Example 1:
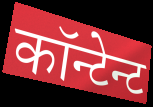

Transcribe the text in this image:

कॉन्टेन्ट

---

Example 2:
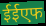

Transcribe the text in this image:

ईईएफ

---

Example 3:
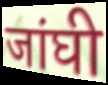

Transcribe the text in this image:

जांघी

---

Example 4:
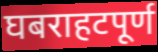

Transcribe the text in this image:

घबराहटपूर्ण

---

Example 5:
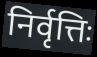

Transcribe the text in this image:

निर्वृत्तिः